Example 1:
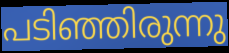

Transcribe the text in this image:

പടിഞ്ഞിരുന്നു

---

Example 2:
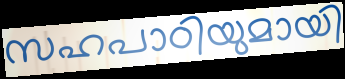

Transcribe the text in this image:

സഹപാഠിയുമായി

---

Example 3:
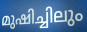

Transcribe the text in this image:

മുഷിച്ചിലും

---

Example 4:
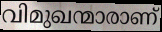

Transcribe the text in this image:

വിമുഖന്മാരാണ്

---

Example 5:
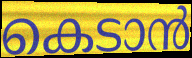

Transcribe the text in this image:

കെടാൻ